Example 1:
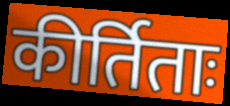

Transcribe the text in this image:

कीर्तिताः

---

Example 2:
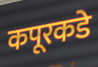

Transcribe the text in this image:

कपूरकडे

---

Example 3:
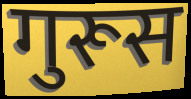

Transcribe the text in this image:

गुरूस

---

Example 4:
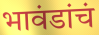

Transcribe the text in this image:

भावंडांचं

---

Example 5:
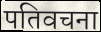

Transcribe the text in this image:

पतिवचना